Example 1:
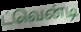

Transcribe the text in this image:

ட்வென்டி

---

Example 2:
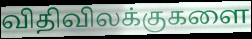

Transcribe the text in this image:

விதிவிலக்குகளை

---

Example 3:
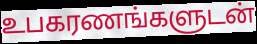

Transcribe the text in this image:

உபகரணங்களுடன்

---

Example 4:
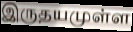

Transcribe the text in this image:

இருதயமுள்ள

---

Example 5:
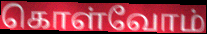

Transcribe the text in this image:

கொள்வோம்